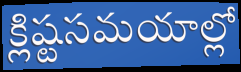
క్లిష్టసమయాల్లో